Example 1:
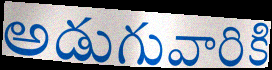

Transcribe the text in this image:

అడుగువారికి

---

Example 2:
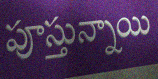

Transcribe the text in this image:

పూస్తున్నాయి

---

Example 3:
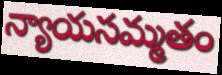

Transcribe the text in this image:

న్యాయసమ్మతం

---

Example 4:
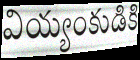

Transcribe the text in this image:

వియ్యంకుడికి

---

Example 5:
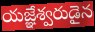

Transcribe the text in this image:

యజ్ఞేశ్వరుడైన